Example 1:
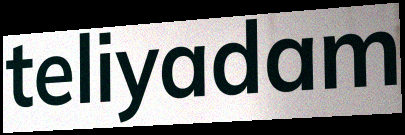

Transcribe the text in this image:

teliyadam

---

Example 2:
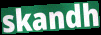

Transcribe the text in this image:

skandh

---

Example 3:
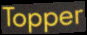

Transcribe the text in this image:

Topper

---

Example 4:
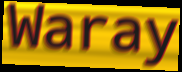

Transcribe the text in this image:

Waray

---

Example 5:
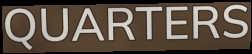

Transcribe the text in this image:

QUARTERS